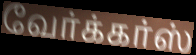
வேர்க்கர்ஸ்